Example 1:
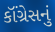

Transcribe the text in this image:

કૉંગ્રેસનું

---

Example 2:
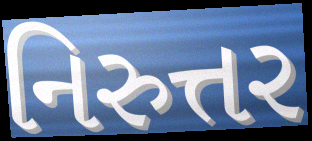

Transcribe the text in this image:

નિરુત્તર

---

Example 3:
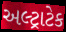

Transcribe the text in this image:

અલ્ટ્રાટેક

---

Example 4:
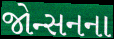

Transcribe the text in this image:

જોન્સનના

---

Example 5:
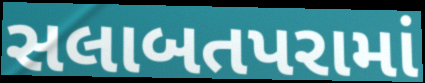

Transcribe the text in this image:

સલાબતપરામાં